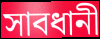
সাবধানী